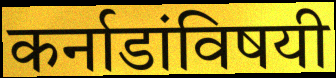
कर्नाडांविषयी